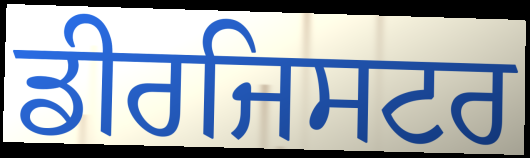
ਡੀਰਜਿਸਟਰ